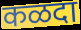
कळदा